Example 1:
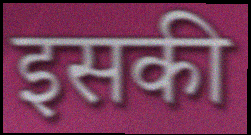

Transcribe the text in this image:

इसकी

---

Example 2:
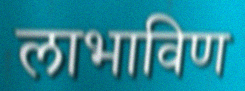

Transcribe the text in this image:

लाभाविण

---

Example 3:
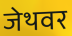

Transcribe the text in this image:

जेथवर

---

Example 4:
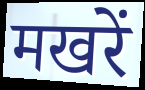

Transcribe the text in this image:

मखरें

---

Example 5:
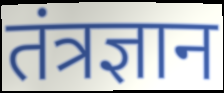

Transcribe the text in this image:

तंत्रज्ञान